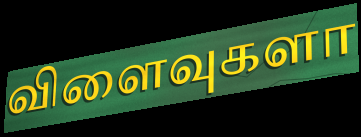
விளைவுகளா